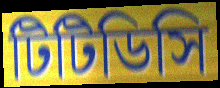
টিটিডিসি